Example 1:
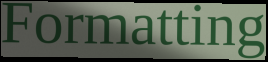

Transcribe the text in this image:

Formatting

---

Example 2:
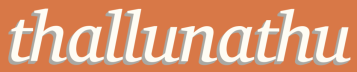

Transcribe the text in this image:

thallunathu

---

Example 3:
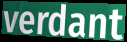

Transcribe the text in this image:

verdant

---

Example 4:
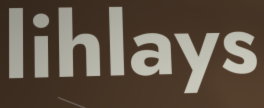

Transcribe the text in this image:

lihlays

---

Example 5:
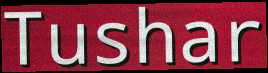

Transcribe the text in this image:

Tushar